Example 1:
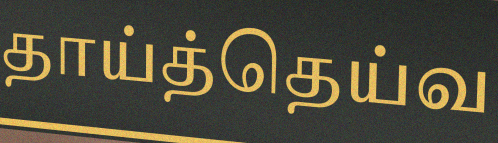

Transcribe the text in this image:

தாய்த்தெய்வ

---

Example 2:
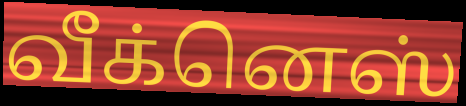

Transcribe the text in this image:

வீக்னெஸ்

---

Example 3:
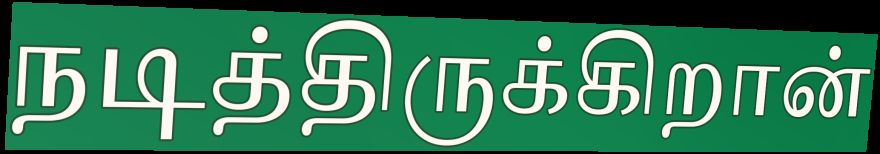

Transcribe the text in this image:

நடித்திருக்கிறான்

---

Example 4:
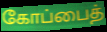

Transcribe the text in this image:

கோப்பைத்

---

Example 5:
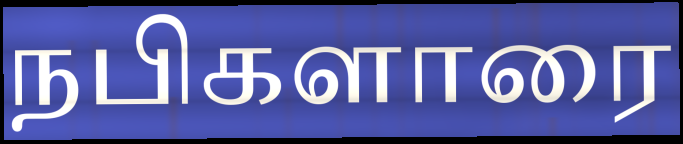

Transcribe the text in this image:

நபிகளாரை